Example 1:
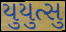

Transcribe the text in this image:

યુયુત્સુ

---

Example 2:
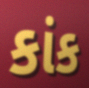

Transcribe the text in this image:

કાંક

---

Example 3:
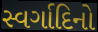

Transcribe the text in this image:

સ્વર્ગાદિનો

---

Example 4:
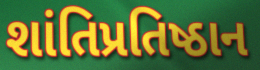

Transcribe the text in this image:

શાંતિપ્રતિષ્ઠાન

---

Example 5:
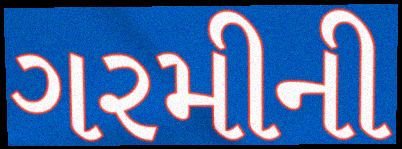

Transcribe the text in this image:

ગરમીની